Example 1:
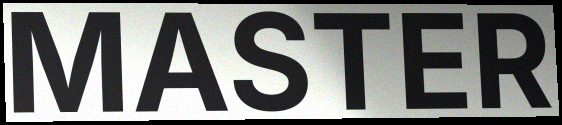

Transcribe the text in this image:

MASTER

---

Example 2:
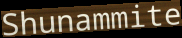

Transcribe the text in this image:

Shunammite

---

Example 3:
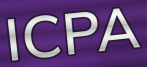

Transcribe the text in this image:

ICPA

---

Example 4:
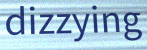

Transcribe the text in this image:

dizzying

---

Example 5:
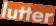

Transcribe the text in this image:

lutter